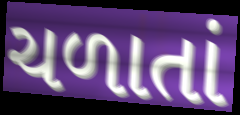
ચળાતાં